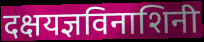
दक्षयज्ञविनाशिनी